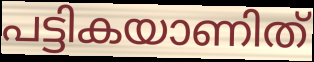
പട്ടികയാണിത്